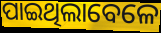
ପାଇଥିଲାବେଳେ